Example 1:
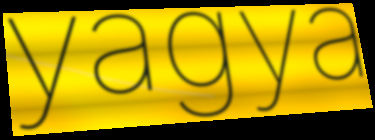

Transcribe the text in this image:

yagya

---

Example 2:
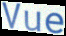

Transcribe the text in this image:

Vue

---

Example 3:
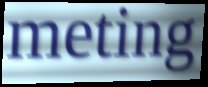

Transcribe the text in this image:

meting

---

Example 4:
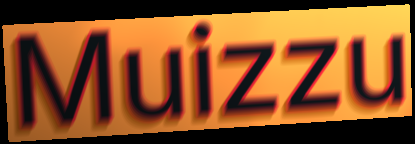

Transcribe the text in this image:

Muizzu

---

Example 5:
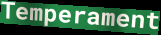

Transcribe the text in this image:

Temperament